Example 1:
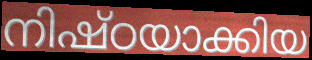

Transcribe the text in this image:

നിഷ്ഠയാക്കിയ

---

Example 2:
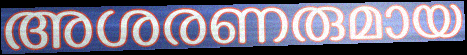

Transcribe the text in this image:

അശരണരുമായ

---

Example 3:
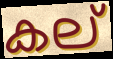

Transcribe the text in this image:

കല്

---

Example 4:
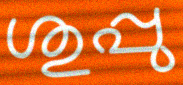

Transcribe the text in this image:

ശുപ്പു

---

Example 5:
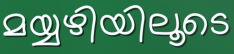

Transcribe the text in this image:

മയ്യഴിയിലൂടെ